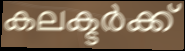
കലക്ടർക്ക്